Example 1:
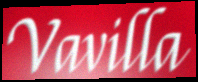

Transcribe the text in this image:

Vavilla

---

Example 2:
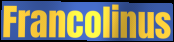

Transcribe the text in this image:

Francolinus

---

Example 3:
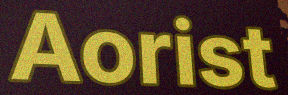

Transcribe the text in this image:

Aorist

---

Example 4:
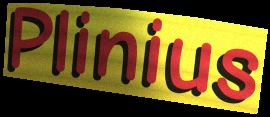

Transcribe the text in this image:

Plinius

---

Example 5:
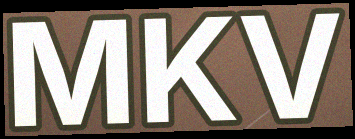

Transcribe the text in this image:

MKV